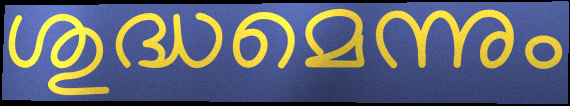
ശുദ്ധമെന്നും